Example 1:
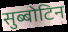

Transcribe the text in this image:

सुब्बोटिन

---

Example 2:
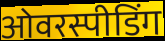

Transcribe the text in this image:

ओवरस्पीडिंग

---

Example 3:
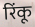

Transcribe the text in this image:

रिंकू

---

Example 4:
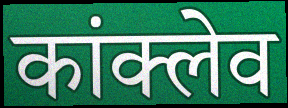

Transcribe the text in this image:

कांक्लेव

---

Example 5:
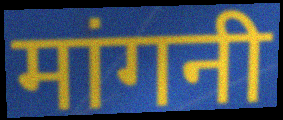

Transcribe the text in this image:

मांगनी